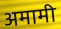
अमामी